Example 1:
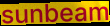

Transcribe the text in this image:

sunbeam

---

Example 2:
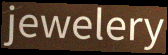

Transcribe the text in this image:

jewelery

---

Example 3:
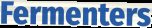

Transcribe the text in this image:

Fermenters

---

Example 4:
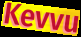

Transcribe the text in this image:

Kevvu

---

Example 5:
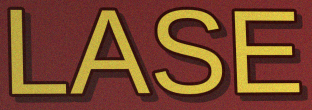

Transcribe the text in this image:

LASE